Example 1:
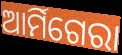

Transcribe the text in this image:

ଆର୍ମିଗେରା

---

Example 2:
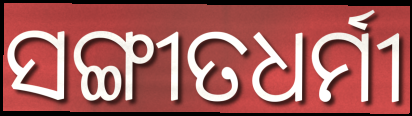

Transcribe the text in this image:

ସଙ୍ଗୀତଧର୍ମୀ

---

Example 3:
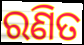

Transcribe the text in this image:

ରଣିତ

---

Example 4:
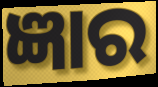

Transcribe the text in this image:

ଜ୍ଞାର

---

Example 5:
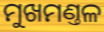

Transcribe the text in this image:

ମୁଖମଣ୍ତଳ